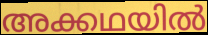
അക്കഥയിൽ